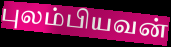
புலம்பியவன்